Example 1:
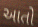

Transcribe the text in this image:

આતો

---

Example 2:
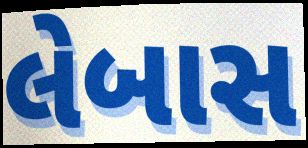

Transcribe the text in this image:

લેબાસ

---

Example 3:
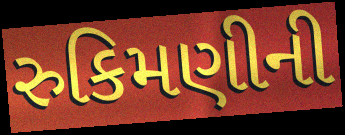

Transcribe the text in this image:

રુકિમણીની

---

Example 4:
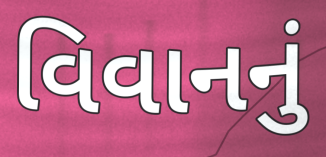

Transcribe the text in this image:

વિવાનનું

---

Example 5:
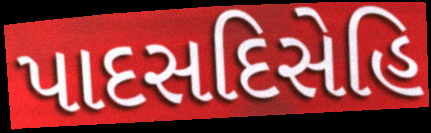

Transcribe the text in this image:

પાદસદિસેહિ